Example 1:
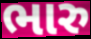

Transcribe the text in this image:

ભારુ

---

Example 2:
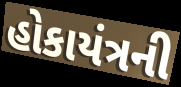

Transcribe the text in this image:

હોકાયંત્રની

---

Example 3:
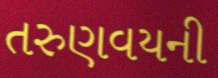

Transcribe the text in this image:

તરુણવયની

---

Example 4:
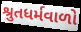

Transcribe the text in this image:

શ્રુતધર્મવાળો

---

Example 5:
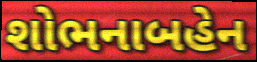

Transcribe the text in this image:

શોભનાબહેન